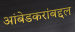
आंबेडकरांबद्दल